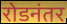
रोडनंतर